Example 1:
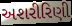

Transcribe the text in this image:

અશરીરિણી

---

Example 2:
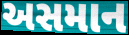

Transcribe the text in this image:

અસમાન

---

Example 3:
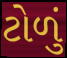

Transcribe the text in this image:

ટોળું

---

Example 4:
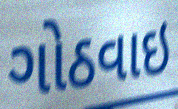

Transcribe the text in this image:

ગોઠવાઇ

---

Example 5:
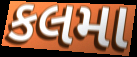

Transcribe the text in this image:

કલમા